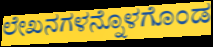
ಲೇಖನಗಳನ್ನೊಳಗೊಂಡ